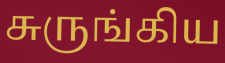
சுருங்கிய